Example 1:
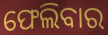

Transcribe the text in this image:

ଫେଲିବାର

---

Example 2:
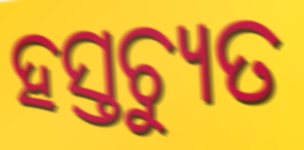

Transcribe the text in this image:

ହସ୍ତଚ୍ୟୁତ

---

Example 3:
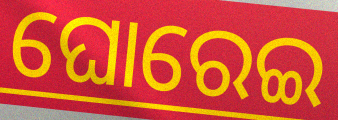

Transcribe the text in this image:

ଘୋରେଇ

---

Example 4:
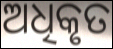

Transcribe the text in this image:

ଅଧିକୃତ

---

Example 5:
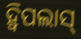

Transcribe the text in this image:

ହ୍ୱିପଲାସ୍